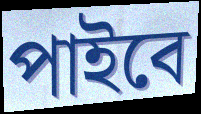
পাইবে